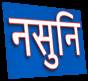
नसुनि